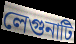
লেগুনাটি